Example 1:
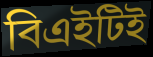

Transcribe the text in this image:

বিএইটিই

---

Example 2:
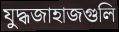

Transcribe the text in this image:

যুদ্ধজাহাজগুলি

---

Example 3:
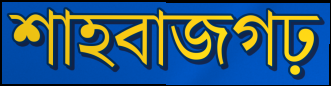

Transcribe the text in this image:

শাহবাজগঢ়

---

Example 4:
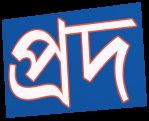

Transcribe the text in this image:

প্রদ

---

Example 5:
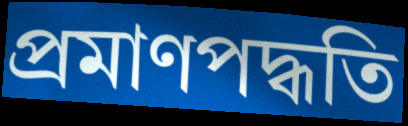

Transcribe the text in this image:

প্রমাণপদ্ধতি